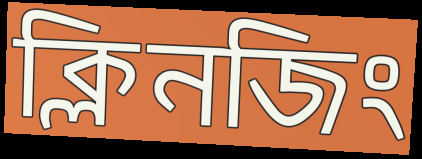
ক্লিনজিং